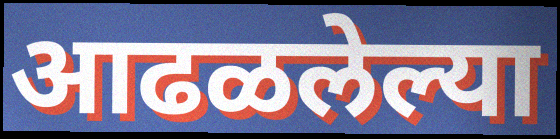
आढळलेल्या